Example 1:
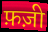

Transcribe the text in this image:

फ़ज़ी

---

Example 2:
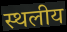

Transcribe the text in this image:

स्थलीय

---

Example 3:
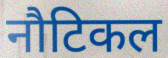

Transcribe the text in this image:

नौटिकल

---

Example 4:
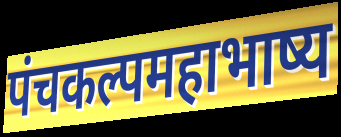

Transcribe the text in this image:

पंचकल्पमहाभाष्य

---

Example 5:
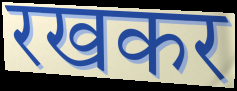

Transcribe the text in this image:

रखकर